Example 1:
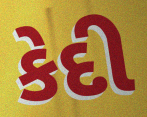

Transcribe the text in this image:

કેદી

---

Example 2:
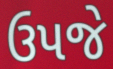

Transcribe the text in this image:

ઉપજે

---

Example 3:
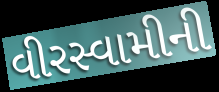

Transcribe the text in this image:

વીરસ્વામીની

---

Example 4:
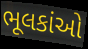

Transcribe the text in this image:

ભૂલકાંઓ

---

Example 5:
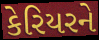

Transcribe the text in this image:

કેરિયરને